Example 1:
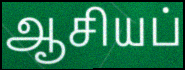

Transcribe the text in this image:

ஆசியப்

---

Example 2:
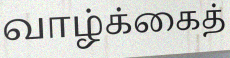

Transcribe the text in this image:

வாழ்க்கைத்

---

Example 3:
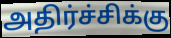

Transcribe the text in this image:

அதிர்ச்சிக்கு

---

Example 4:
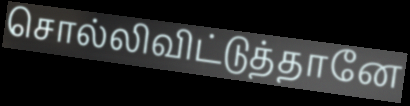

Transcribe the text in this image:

சொல்லிவிட்டுத்தானே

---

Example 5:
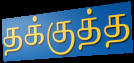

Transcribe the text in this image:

தக்குத்த